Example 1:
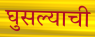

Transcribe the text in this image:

घुसल्याची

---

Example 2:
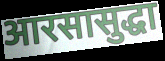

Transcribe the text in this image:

आरसासुद्धा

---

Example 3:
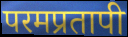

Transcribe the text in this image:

परमप्रतापी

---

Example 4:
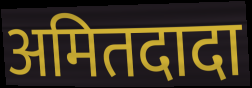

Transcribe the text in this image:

अमितदादा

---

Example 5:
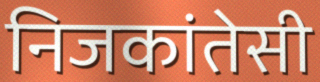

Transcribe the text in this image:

निजकांतेसी